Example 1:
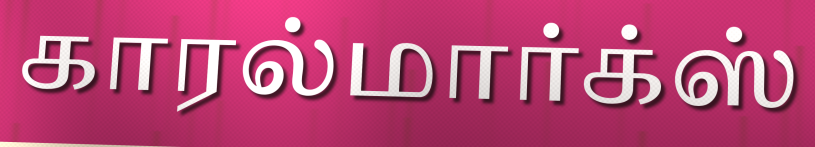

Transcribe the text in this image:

காரல்மார்க்ஸ்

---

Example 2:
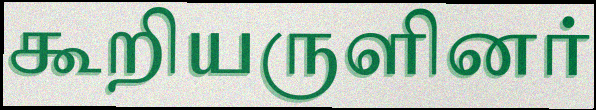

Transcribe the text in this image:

கூறியருளினர்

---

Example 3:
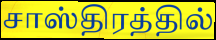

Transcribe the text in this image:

சாஸ்திரத்தில்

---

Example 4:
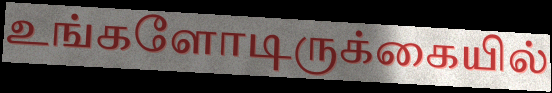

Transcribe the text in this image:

உங்களோடிருக்கையில்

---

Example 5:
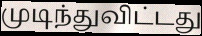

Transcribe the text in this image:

முடிந்துவிட்டது